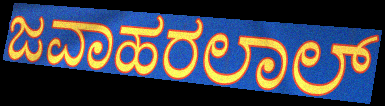
ಜವಾಹರಲಾಲ್